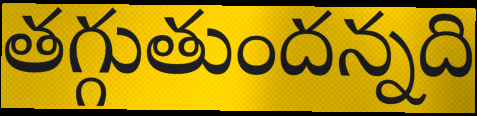
తగ్గుతుందన్నది